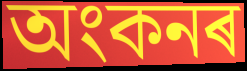
অংকনৰ